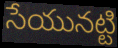
సేయునట్టి